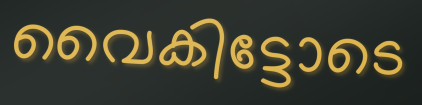
വൈകിട്ടോടെ